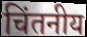
चिंतनीय